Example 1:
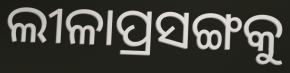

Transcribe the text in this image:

ଲୀଳାପ୍ରସଙ୍ଗକୁ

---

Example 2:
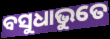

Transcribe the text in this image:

ବସୁଧାଭୁତେ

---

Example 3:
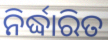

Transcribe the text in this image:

ନିର୍ଦ୍ଧାରିତ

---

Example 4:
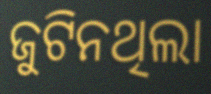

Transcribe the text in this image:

ଜୁଟିନଥିଲା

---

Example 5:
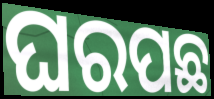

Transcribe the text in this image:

ଘରପଛ